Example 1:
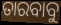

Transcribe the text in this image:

ତାରବାବୁ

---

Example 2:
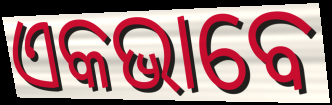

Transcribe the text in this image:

ଏକଭାବେ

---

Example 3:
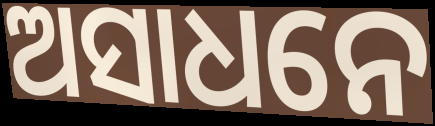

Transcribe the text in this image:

ଅସାଧନେ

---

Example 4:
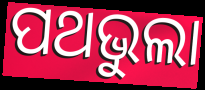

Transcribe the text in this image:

ପଥଭୁଲା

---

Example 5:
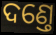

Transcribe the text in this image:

ଦଣ୍ତେ